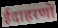
ईदाहरणों